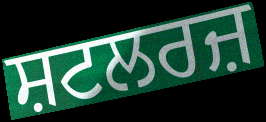
ਸ਼ਟਲਰਜ਼